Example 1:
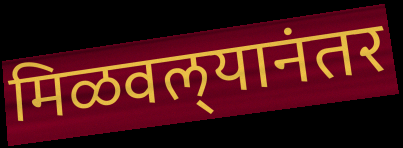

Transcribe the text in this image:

मिळवल्यानंतर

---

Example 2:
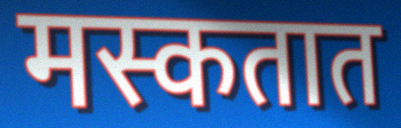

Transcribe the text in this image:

मस्कतात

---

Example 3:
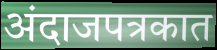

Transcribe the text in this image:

अंदाजपत्रकात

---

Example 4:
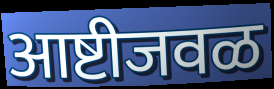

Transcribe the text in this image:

आष्टीजवळ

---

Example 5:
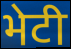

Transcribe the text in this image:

भेटी